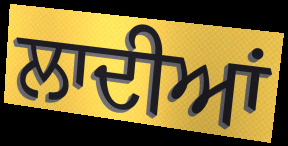
ਲਾਦੀਆਂ